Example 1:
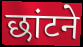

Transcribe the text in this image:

छांटने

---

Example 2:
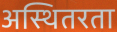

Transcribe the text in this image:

अस्थितरता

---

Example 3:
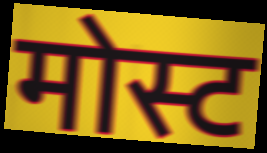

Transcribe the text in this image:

मोस्ट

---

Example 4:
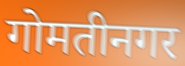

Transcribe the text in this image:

गोमतीनगर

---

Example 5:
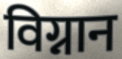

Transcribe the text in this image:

विग्नान